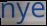
nye